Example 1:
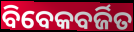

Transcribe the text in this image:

ବିବେକବର୍ଜିତ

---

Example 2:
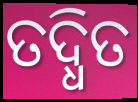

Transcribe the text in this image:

ତଦ୍ଧିତ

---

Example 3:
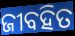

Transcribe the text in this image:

ଜୀବହିତ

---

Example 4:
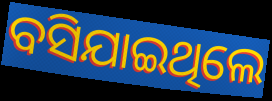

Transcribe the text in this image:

ବସିଯାଇଥିଲେ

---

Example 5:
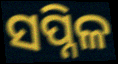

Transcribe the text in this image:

ସପ୍ନିଳ